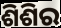
ଶିଶିର